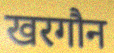
खरगौन